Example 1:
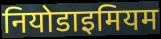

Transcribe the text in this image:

नियोडाइमियम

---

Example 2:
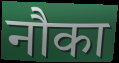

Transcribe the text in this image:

नौका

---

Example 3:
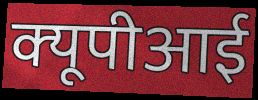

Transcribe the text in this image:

क्यूपीआई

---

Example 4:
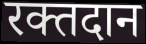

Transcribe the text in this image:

रक्तदान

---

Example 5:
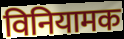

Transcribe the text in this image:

विनियामक